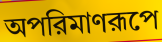
অপরিমাণরূপে